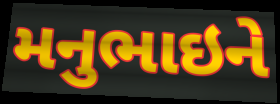
મનુભાઇને